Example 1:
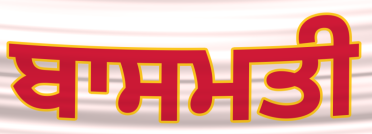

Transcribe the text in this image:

ਬਾਸਮਤੀ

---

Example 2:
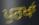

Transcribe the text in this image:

ਪੁਰਖਾਂ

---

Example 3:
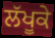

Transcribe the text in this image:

ਲੱਖੂਕੇ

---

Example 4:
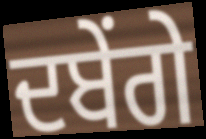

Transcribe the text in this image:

ਦਬੇਂਗੇ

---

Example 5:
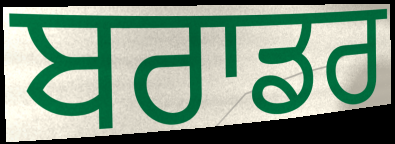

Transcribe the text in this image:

ਬਰਾਡਰ